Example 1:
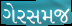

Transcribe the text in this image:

ગેરસમજ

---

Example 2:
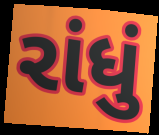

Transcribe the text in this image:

રાંધું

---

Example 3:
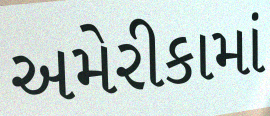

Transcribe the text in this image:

અમેરીકામાં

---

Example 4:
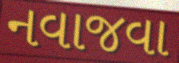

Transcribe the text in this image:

નવાજવા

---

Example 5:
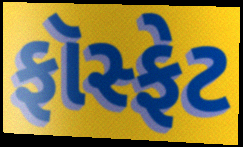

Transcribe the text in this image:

ફૉસ્ફેટ